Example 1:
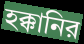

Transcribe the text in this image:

হক্কানির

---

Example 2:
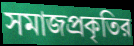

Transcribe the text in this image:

সমাজপ্রকৃতির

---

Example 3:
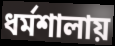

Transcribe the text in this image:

ধর্মশালায়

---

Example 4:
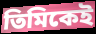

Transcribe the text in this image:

তিমিকেই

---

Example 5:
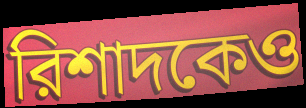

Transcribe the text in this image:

রিশাদকেও